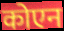
कोएन